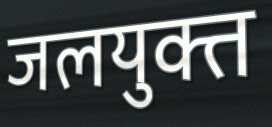
जलयुक्त